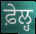
ਫ਼ੇਲ੍ਹ